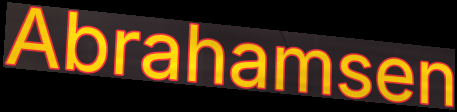
Abrahamsen